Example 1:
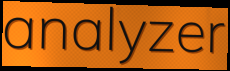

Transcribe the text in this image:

analyzer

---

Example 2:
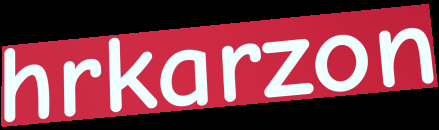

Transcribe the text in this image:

hrkarzon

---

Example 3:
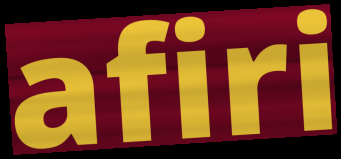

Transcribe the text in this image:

afiri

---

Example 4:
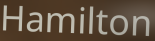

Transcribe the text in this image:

Hamilton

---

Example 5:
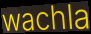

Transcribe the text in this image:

wachla